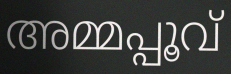
അമ്മപ്പൂവ്